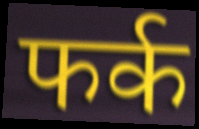
फर्क